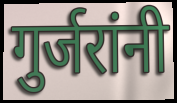
गुर्जरांनी